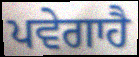
ਪਵੇਗਾਹੈ